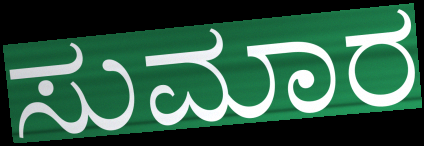
ಸುಮಾರ